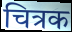
चित्रक